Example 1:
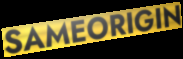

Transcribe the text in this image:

SAMEORIGIN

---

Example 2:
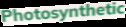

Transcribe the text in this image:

Photosynthetic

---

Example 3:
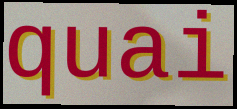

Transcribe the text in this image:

quai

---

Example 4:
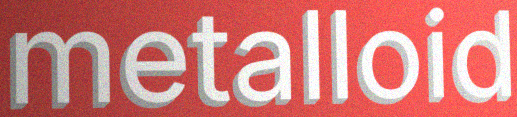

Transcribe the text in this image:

metalloid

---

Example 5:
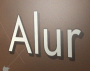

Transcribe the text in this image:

Alur